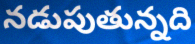
నడుపుతున్నది